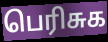
பெரிசுக